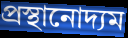
প্রস্থানোদ্যম